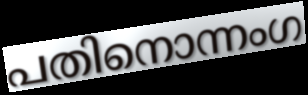
പതിനൊന്നംഗ